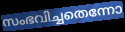
സംഭവിച്ചതെന്നോ